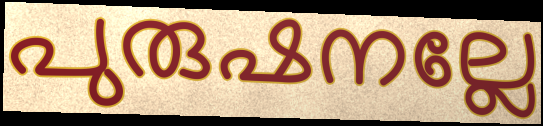
പുരുഷനല്ലേ